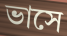
ভাসে